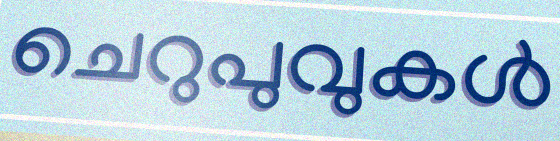
ചെറുപുവുകൾ